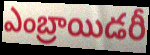
ఎంబ్రాయిడరీ